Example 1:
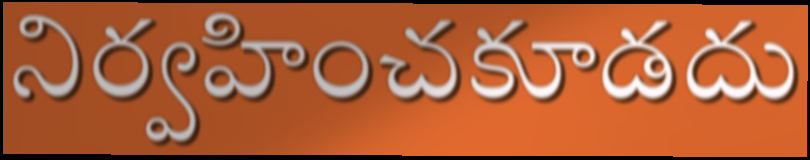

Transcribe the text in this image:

నిర్వహించకూడదు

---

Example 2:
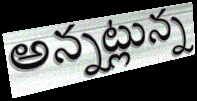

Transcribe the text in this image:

అన్నట్లున్న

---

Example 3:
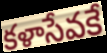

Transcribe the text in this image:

కళాసేవకే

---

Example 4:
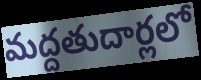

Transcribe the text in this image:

మద్దతుదార్లలో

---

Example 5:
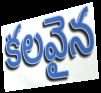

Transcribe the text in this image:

కలవైన